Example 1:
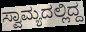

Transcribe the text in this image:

ಸ್ವಾಮ್ಯದಲ್ಲಿದ್ದ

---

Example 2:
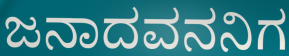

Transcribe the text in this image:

ಜನಾದವನನಿಗ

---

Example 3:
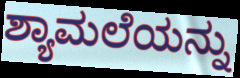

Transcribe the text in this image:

ಶ್ಯಾಮಲೆಯನ್ನು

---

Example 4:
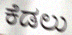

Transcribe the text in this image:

ಕೆಡಲು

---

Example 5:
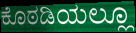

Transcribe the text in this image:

ಕೊಠಡಿಯಲ್ಲೂ